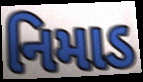
નિમાડ